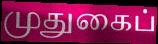
முதுகைப்